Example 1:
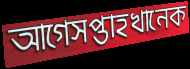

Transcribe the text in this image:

আগেসপ্তাহখানেক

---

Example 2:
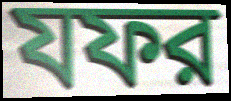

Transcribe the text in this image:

যফর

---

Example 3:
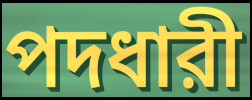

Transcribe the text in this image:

পদধারী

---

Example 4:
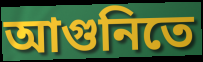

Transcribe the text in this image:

আগুনিতে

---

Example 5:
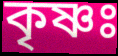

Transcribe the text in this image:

কৃষ্ণঃ